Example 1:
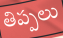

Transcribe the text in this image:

తిప్పలు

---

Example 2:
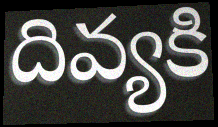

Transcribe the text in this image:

దివ్యకి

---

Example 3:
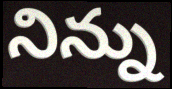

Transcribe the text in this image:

నిన్ను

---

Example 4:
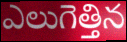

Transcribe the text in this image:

ఎలుగెత్తిన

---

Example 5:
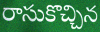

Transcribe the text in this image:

రాసుకొచ్చిన